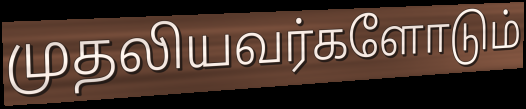
முதலியவர்களோடும்